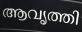
ആവൃത്തി